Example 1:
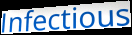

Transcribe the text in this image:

Infectious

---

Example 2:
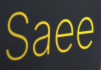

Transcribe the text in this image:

Saee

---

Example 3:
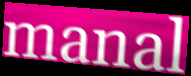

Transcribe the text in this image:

manal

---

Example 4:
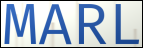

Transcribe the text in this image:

MARL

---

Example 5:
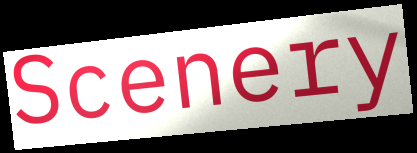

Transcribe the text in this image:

Scenery